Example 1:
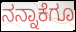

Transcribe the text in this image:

ನನ್ನಾಕೆಗೂ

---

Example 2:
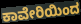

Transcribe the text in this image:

ಕಾವೇರಿಯಿಂದ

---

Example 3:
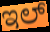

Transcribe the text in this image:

ಇಲ್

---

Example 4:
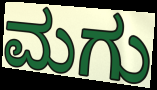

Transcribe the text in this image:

ಮಗು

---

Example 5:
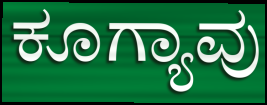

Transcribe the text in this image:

ಕೂಗ್ಯಾವು